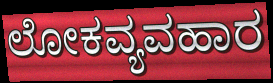
ಲೋಕವ್ಯವಹಾರ